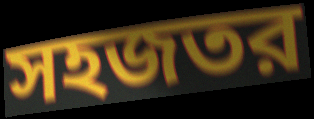
সহজতর